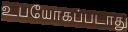
உபயோகப்படாது